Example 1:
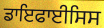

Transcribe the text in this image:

ਡਾਇਫਾਈਸਿਸ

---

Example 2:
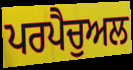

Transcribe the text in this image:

ਪਰਪੈਚੁਅਲ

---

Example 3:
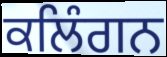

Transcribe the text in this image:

ਕਲਿੰਗਨ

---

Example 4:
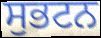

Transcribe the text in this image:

ਸੁਭਟਨ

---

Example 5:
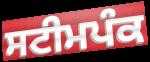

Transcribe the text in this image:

ਸਟੀਮਪੰਕ